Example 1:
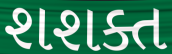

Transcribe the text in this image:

શશક્ત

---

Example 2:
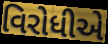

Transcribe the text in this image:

વિરોધીએ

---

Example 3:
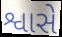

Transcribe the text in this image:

શ્વાસે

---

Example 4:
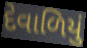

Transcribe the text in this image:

દેવાળિયું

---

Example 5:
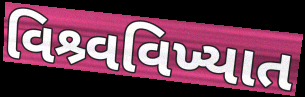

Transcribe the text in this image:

વિશ્ર્વવિખ્યાત